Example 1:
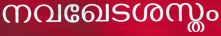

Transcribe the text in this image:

നവഖേടശസ്തം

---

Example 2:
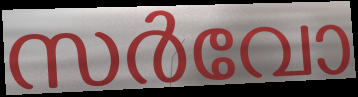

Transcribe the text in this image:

സർവോ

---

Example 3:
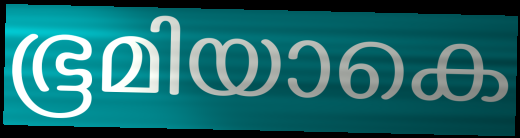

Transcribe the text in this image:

ഭൂമിയാകെ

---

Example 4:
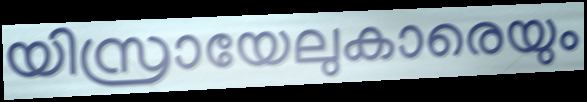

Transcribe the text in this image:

യിസ്രായേലുകാരെയും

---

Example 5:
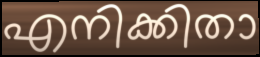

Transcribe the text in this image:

എനിക്കിതാ